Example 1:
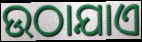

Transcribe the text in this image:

ଉଠାଯାଏ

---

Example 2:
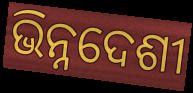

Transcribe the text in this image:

ଭିନ୍ନଦେଶୀ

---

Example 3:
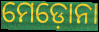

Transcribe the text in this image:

ମେଡ଼ୋନା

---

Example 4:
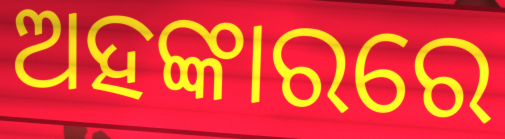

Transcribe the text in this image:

ଅହଙ୍କାରରେ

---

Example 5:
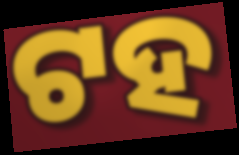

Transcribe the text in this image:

ଟହ